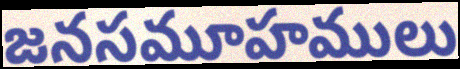
జనసమూహములు